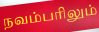
நவம்பரிலும்